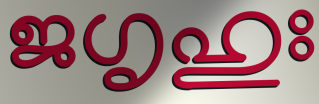
ജഗൃഹുഃ